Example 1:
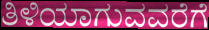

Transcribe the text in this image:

ತಿಳಿಯಾಗುವವರೆಗೆ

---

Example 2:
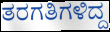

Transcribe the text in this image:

ತರಗತಿಗಳಿದ್ದ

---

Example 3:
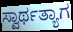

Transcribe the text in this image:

ಸ್ವಾರ್ಥತ್ಯಾಗ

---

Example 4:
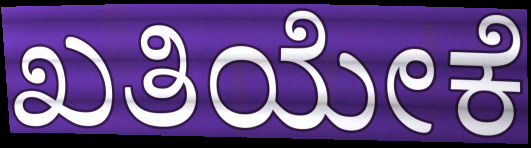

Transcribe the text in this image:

ಖತಿಯೇಕೆ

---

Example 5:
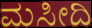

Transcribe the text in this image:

ಮಸೀದಿ